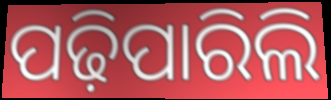
ପଢ଼ିପାରିଲି